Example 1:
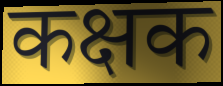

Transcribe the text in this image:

कक्षक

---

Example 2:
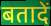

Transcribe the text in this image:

बतादें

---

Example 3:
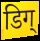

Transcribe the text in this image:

डिग्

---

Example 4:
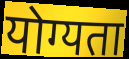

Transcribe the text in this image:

योग्यता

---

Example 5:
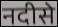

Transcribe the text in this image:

नदीसे